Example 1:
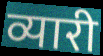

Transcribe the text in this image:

व्यारी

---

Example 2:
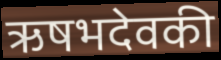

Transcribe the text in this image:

ऋषभदेवकी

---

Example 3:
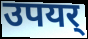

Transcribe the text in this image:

उपयर्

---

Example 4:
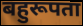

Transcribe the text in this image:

बहुरूपता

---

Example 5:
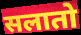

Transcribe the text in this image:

सलातो